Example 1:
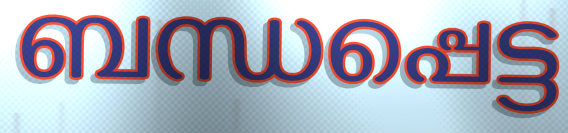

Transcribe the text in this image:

ബന്ധപ്പെട്ട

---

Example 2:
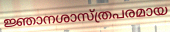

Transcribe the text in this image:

ജ്ഞാനശാസ്ത്രപരമായ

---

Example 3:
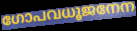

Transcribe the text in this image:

ഗോപവധൂജനേന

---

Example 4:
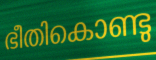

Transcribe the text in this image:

ഭീതികൊണ്ടു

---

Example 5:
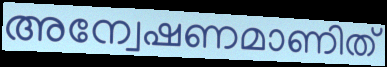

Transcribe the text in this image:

അന്വേഷണമാണിത്